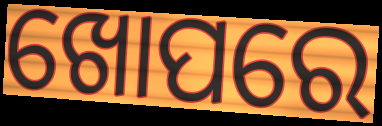
ଖୋପରେ